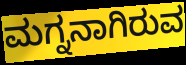
ಮಗ್ನನಾಗಿರುವ